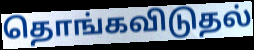
தொங்கவிடுதல்